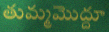
తుమ్మమొద్దూ